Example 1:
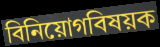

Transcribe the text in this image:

বিনিয়োগবিষয়ক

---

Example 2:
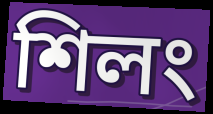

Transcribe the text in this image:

শিলং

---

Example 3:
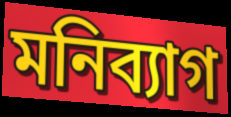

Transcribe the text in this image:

মনিব্যাগ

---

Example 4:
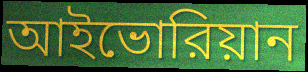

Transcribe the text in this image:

আইভোরিয়ান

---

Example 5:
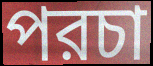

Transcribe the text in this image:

পরচা